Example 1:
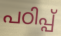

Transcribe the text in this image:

പഠിപ്പ്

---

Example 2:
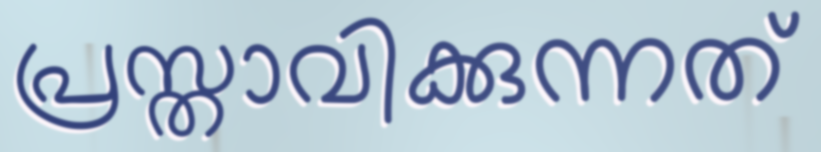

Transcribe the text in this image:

പ്രസ്താവിക്കുന്നത്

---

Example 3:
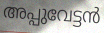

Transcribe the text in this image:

അപ്പുവേട്ടൻ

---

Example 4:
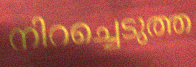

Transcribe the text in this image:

നിറച്ചെടുത്ത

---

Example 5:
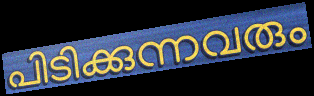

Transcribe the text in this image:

പിടിക്കുന്നവരും